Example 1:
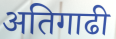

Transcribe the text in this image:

अतिगाढी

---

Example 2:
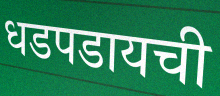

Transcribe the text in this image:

धडपडायची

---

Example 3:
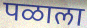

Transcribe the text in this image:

पळाला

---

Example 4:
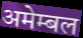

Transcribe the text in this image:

अमेम्बल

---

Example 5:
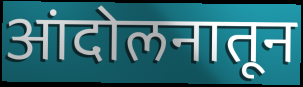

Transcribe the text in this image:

आंदोलनातून